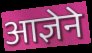
आज्ञेने